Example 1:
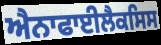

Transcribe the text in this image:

ਐਨਾਫਾਈਲੈਕਸਿਸ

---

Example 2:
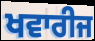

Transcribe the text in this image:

ਖਵਾਰੀਜ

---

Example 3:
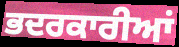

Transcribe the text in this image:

ਭਦਰਕਾਰੀਆਂ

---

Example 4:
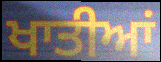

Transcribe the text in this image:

ਖਾਤੀਆਂ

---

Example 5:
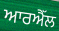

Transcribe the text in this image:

ਆਰਐੱਲ